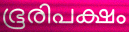
ഭൂരിപക്ഷം